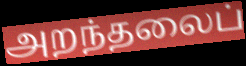
அறந்தலைப்